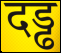
दड्ढ